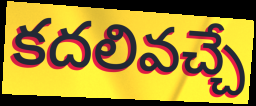
కదలివచ్చే